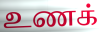
உணக்